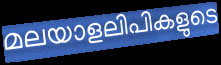
മലയാളലിപികളുടെ